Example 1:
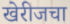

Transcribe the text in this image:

खेरीजचा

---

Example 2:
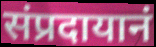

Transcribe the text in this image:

संप्रदायानं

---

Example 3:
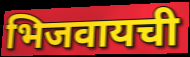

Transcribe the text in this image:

भिजवायची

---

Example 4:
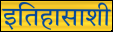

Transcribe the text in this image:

इतिहासाशी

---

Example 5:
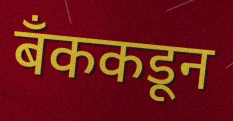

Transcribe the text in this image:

बँककडून